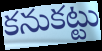
కనుకట్టు